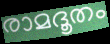
രാമദൂതം